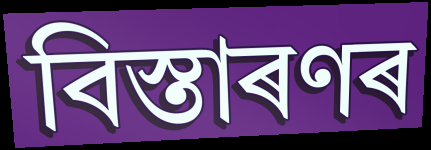
বিস্তাৰণৰ